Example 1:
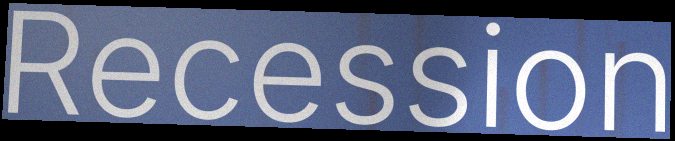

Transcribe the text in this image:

Recession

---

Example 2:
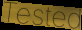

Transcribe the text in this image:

Tested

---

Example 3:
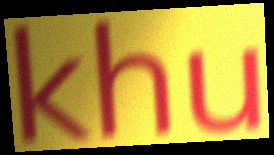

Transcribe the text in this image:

khu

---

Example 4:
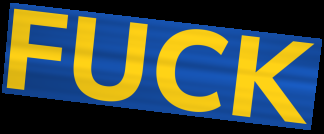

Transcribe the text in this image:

FUCK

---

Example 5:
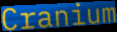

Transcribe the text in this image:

Cranium